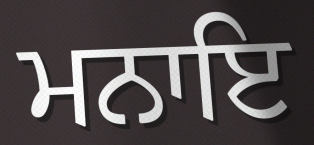
ਮਨਾਇ